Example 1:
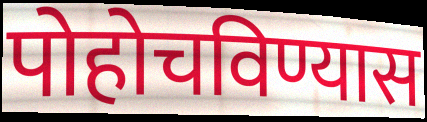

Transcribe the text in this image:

पोहोचविण्यास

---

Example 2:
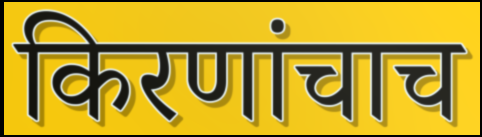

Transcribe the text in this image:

किरणांचाच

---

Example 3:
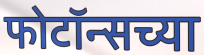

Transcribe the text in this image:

फोटॉन्सच्या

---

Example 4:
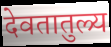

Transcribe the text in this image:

देवतातुल्य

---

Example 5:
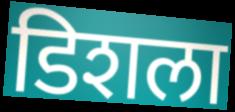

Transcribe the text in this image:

डिशला